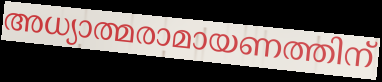
അധ്യാത്മരാമായണത്തിന്